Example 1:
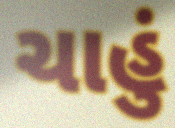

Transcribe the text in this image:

ચાહું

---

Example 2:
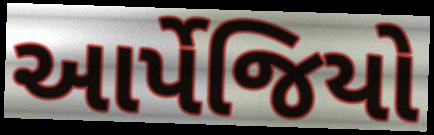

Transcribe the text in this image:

આર્પેજિયો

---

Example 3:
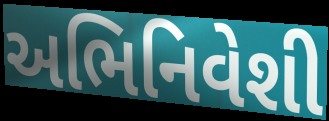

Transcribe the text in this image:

અભિનિવેશી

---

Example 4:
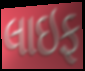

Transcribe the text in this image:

લાઇફ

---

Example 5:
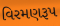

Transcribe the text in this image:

વિરમણરૂપ